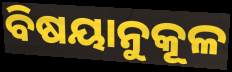
ବିଷୟାନୁକୂଳ